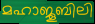
മഹാജൂബിലി